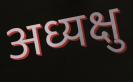
अध्यक्षु